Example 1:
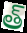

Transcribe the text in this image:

త్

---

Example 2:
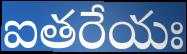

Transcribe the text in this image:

ఐతరేయః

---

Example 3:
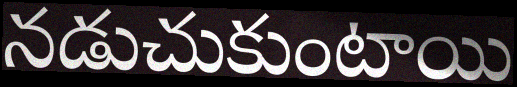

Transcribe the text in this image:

నడుచుకుంటాయి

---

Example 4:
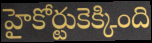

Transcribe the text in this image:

హైకోర్టుకెక్కింది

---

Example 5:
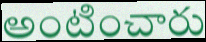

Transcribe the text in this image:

అంటించారు